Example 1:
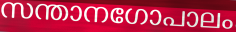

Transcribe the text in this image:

സന്താനഗോപാലം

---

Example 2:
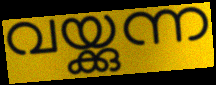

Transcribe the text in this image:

വയ്ക്കുന്ന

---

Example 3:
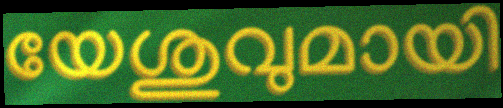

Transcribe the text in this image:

യേശുവുമായി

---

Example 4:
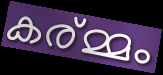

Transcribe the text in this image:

കര്മ്മം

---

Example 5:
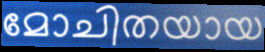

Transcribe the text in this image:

മോചിതയായ